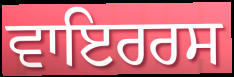
ਵਾਇਰਰਸ